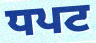
ਧਪਟ